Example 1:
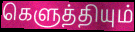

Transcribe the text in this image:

கெளுத்தியும்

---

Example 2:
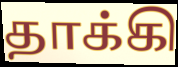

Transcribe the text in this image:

தாக்கி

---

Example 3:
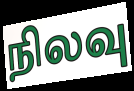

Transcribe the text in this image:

நிலவு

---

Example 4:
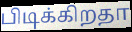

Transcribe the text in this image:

பிடிக்கிறதா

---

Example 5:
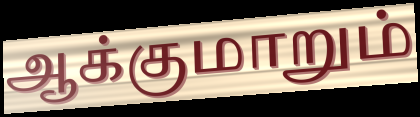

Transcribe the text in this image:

ஆக்குமாறும்